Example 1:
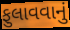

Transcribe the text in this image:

ફુલાવવાનું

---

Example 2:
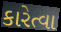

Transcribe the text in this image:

કારેત્વા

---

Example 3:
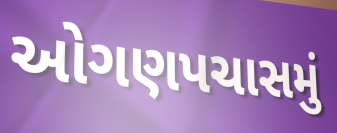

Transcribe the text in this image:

ઓગણપચાસમું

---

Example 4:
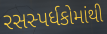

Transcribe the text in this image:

રસસ્પર્ધકોમાંથી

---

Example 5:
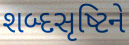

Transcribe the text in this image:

શબ્દસૃષ્ટિને